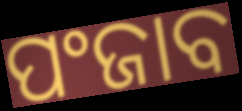
ପଂଜାବ